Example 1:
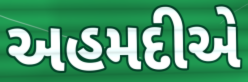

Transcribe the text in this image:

અહમદીએ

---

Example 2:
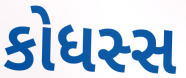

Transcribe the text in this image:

કોધસ્સ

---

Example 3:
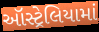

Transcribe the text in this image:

ઑસ્ટ્રેલિયામાં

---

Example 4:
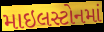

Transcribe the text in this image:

માઇલસ્ટોનમાં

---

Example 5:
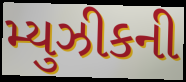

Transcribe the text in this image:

મ્યુઝીકની